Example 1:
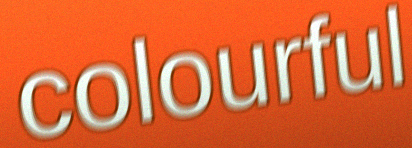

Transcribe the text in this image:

colourful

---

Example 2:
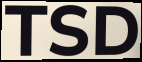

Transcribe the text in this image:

TSD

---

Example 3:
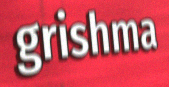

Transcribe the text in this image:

grishma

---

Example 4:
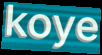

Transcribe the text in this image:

koye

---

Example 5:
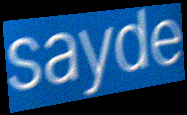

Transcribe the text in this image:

sayde